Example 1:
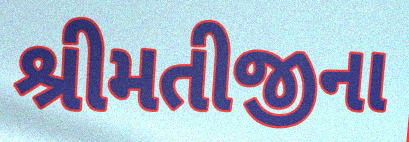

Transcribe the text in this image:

શ્રીમતીજીના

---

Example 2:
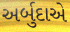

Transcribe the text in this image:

અર્બુદાએ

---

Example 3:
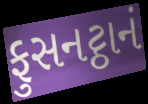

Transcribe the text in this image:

ફુસનટ્ઠાનં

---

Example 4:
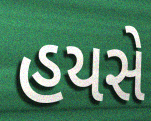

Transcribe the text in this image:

હયસે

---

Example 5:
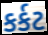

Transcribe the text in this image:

કર્કટ